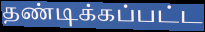
தண்டிக்கப்பட்ட